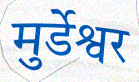
मुर्डेश्वर